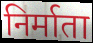
निर्माता